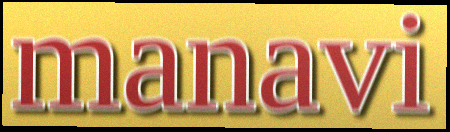
manavi